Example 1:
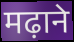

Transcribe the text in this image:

मढ़ाने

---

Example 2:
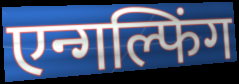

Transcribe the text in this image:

एन्गल्फिंग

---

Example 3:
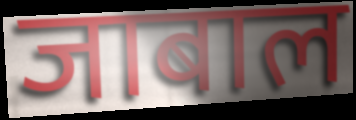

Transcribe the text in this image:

जाबाल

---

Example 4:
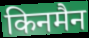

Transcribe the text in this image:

किनमैन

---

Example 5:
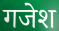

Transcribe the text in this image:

गजेश